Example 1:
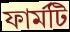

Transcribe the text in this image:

ফার্মটি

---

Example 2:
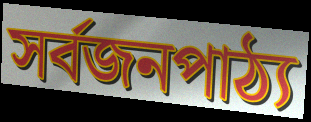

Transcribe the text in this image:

সর্বজনপাঠ্য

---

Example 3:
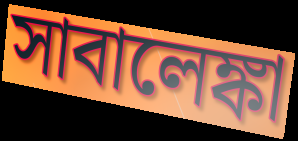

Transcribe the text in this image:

সাবালেঙ্কা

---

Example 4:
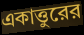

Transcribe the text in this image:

একাত্তুরের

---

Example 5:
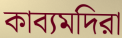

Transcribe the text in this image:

কাব্যমদিরা